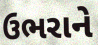
ઉભરાને